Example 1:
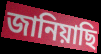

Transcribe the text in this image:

জানিয়াছি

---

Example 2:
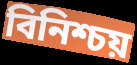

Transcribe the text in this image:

বিনিশ্চয়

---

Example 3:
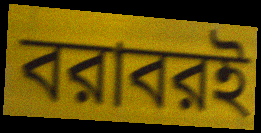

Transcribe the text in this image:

বরাবরই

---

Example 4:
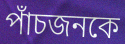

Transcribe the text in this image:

পাঁচজনকে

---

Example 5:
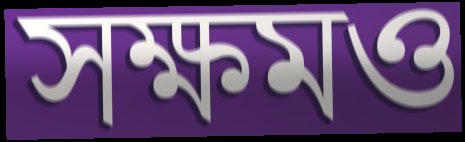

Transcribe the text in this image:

সক্ষমও